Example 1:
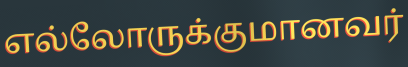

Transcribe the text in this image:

எல்லோருக்குமானவர்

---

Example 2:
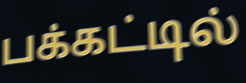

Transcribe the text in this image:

பக்கட்டில்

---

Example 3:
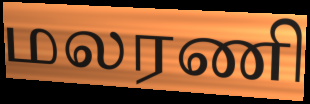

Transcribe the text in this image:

மலரணி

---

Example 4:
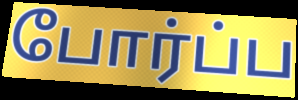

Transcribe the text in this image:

போர்ப்ப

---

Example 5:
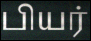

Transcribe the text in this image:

பியர்